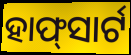
ହାଫ୍‍ସାର୍ଟ